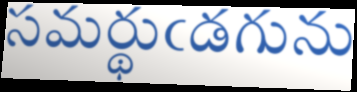
సమర్థుఁడగును